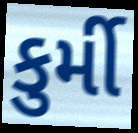
કુર્મી